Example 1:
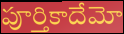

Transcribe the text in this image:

పూర్తికాదేమో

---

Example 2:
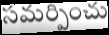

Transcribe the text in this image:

సమర్పించు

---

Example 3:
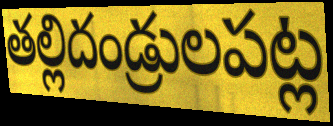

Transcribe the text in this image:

తల్లిదండ్రులపట్ల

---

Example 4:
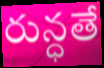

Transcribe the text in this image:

రున్ధతే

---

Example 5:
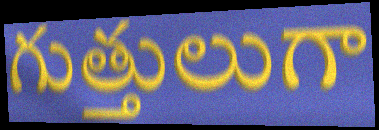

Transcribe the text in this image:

గుత్తులుగా